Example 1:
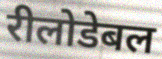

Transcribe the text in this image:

रीलोडेबल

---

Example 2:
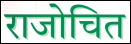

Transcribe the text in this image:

राजोचित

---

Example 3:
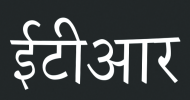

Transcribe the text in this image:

ईटीआर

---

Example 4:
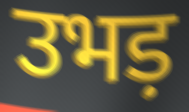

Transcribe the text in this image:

उभड़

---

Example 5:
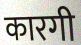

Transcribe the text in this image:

कारगी